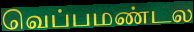
வெப்பமண்டல